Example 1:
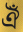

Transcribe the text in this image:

ঐঁ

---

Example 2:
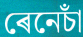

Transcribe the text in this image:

ৰেনেচাঁ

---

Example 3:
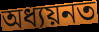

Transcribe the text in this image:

অধ্যয়নত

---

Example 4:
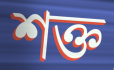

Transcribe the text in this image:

শক্ত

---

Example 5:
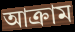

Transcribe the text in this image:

আক্ৰাম